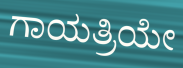
ಗಾಯತ್ರಿಯೇ